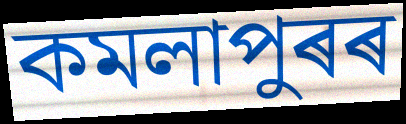
কমলাপুৰৰ